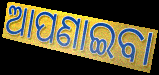
ଆପଣାଇବା